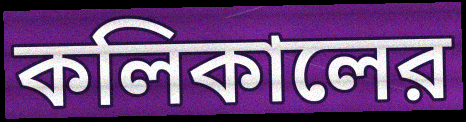
কলিকালের